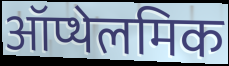
ऑप्थेलमिक